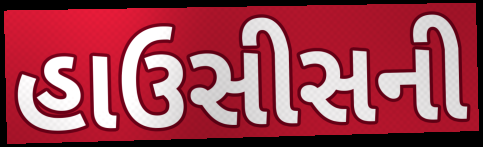
હાઉસીસની